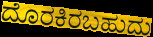
ದೊರಕಿರಬಹುದು